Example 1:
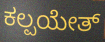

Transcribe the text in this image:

ಕಲ್ಪಯೇತ್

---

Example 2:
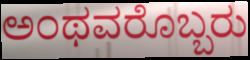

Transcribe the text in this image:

ಅಂಥವರೊಬ್ಬರು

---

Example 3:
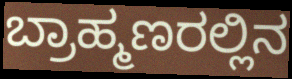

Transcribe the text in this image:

ಬ್ರಾಹ್ಮಣರಲ್ಲಿನ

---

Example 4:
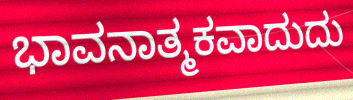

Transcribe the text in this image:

ಭಾವನಾತ್ಮಕವಾದುದು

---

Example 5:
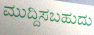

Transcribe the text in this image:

ಮುದ್ದಿಸಬಹುದು